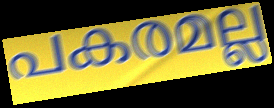
പകരമല്ല